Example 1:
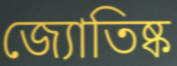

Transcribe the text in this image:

জ্যোতিষ্ক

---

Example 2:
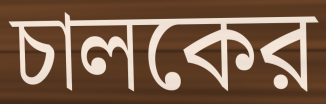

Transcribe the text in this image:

চালকের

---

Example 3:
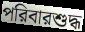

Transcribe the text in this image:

পরিবারশুদ্ধ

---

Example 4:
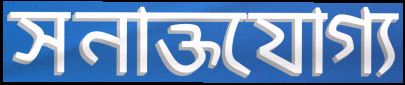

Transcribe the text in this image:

সনাক্তযোগ্য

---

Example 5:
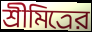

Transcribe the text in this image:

শ্রীমিত্রের